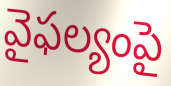
వైఫల్యంపై